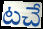
టచే